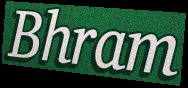
Bhram